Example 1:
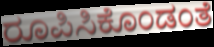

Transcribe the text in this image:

ರೂಪಿಸಿಕೊಂಡಂತೆ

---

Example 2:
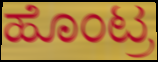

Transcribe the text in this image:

ಹೊಂಟ್ರ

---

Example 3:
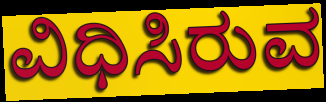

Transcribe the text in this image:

ವಿಧಿಸಿರುವ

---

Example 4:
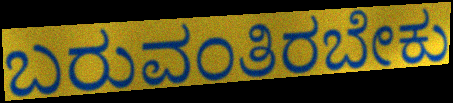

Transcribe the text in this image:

ಬರುವಂತಿರಬೇಕು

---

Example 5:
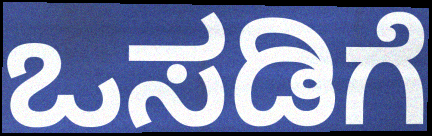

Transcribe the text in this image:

ಒಸಡಿಗೆ